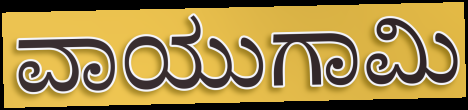
ವಾಯುಗಾಮಿ